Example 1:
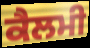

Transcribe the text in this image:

ਕੈਲਮੀ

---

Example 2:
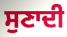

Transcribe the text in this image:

ਸੁਣਾਦੀ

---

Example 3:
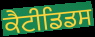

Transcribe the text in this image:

ਕੈਟੀਡਿਡਸ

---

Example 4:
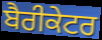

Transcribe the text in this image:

ਬੈਰੀਕੇਟਰ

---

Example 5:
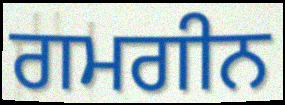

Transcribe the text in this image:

ਗਮਗੀਨ